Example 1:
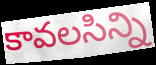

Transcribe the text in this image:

కావలసిన్ని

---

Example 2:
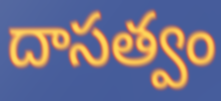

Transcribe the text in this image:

దాసత్వం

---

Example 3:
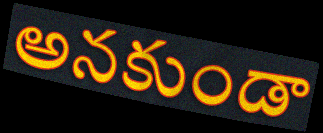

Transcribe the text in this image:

అనకుండా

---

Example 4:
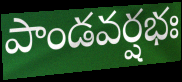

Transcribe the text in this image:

పాండవర్షభః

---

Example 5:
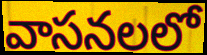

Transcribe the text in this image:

వాసనలలో